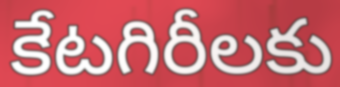
కేటగిరీలకు